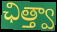
ఛిత్త్వా